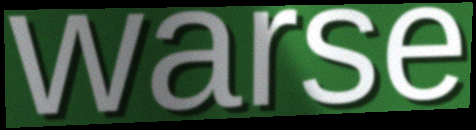
warse